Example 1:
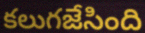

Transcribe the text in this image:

కలుగజేసింది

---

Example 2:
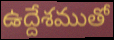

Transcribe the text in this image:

ఉద్దేశముతో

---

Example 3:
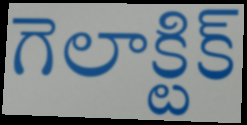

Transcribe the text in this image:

గెలాక్టిక్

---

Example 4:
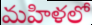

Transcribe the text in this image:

మహిళలో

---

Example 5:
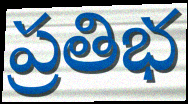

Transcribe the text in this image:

ప్రతిభ